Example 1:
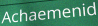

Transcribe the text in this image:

Achaemenid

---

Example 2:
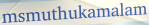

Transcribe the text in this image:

msmuthukamalam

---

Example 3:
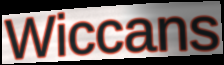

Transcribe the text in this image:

Wiccans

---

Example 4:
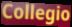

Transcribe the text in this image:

Collegio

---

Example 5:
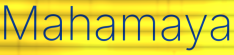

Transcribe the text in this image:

Mahamaya